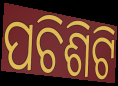
ପଚିଶିଟି